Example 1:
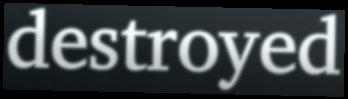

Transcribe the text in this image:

destroyed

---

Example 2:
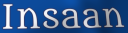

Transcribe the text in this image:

Insaan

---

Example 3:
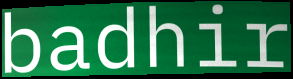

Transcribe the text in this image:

badhir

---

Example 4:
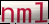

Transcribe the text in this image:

nml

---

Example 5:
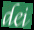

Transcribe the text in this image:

dei